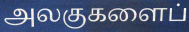
அலகுகளைப்